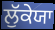
ਲੁੱਕੇਯਾ